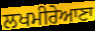
ਲਖਮੀਰੇਆਣਾ